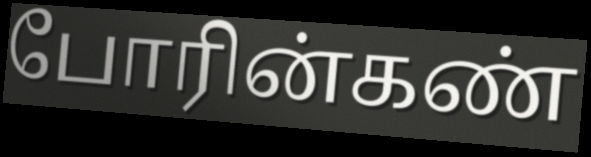
போரின்கண்